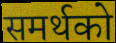
समर्थको